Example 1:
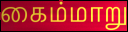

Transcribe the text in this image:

கைம்மாறு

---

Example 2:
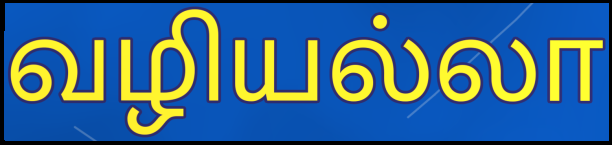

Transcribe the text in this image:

வழியல்லா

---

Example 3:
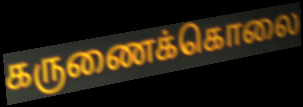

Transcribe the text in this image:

கருணைக்கொலை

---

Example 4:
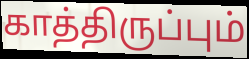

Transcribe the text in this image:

காத்திருப்பும்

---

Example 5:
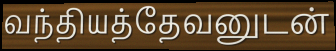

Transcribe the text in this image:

வந்தியத்தேவனுடன்